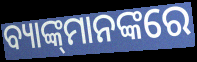
ବ୍ୟାଙ୍କ୍‌ମାନଙ୍କରେ